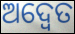
ଅଦ୍ଵେତ